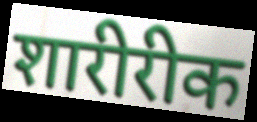
शारीरीक